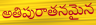
అతిపురాతనమైన